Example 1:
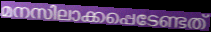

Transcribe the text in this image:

മനസിലാക്കപ്പെടേണ്ടത്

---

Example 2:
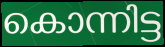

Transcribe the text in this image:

കൊന്നിട്ട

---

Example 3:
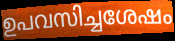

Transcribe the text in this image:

ഉപവസിച്ചശേഷം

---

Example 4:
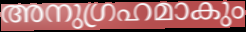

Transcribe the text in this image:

അനുഗ്രഹമാകും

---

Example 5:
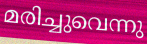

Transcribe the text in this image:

മരിച്ചുവെന്നു